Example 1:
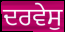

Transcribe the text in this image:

ਦਰਵੇਸੁ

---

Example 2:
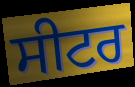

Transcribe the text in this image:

ਸੀਟਰ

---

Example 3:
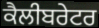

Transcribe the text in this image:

ਕੈਲੀਬਰੇਟਰ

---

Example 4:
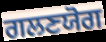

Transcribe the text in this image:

ਗਲਣਯੋਗ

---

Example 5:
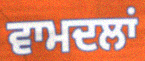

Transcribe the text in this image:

ਵਾਮਦਲਾਂ